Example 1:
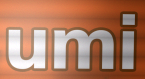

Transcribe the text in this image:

umi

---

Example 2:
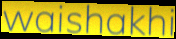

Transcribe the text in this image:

waishakhi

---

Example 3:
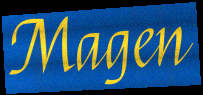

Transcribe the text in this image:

Magen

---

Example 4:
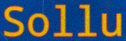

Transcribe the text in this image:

Sollu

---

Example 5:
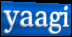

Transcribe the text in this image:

yaagi